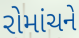
રોમાંચને